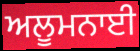
ਅਲੂਮਨਾਈ